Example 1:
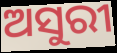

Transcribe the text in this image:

ଅସୁରୀ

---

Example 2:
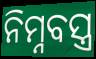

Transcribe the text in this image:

ନିମ୍ନବସ୍ତ୍ର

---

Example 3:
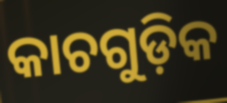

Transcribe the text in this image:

କାଚଗୁଡ଼ିକ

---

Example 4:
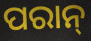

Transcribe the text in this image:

ପରାନ୍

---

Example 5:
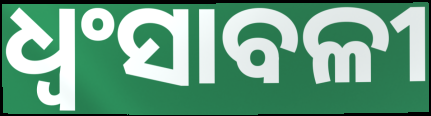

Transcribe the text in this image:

ଧ୍ୱଂସାବଳୀ